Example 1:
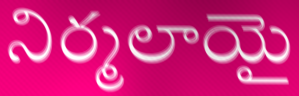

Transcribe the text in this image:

నిర్మలాయై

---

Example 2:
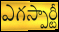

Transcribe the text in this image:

ఎగస్పార్టీ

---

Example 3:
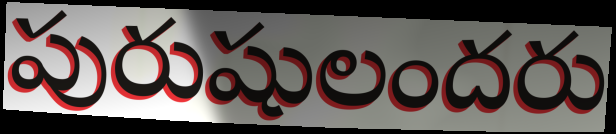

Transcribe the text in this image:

పురుషులందరు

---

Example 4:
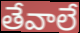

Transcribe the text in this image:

తేవాలే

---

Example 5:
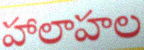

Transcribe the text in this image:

హాలాహల